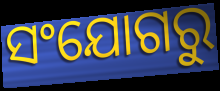
ସଂଯୋଗରୁ